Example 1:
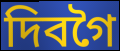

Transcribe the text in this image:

দিবগৈ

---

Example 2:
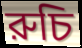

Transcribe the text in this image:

ৰুচি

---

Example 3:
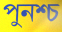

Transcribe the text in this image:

পুনশ্চ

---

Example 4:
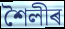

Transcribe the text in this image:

শৈলীৰ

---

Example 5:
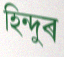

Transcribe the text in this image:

হিন্দুৰ